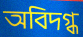
অবিদগ্ধ